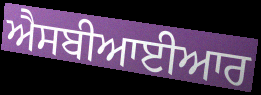
ਐਸਬੀਆਈਆਰ